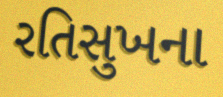
રતિસુખના